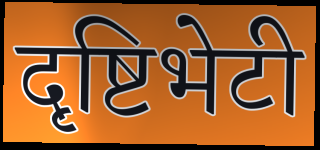
दृष्टिभेटी